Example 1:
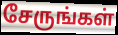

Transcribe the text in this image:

சேருங்கள்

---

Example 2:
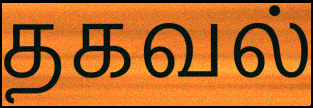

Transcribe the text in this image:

தகவல்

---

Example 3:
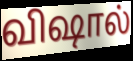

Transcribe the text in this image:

விஷால்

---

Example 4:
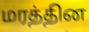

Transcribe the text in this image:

மரத்தின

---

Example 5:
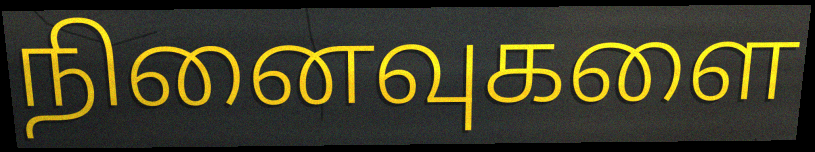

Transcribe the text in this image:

நினைவுகளை